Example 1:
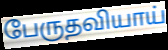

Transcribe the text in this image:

பேருதவியாய்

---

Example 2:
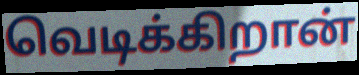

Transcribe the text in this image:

வெடிக்கிறான்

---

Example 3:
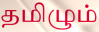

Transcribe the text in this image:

தமிழும்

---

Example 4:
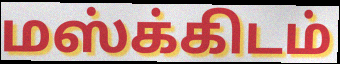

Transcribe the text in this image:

மஸ்க்கிடம்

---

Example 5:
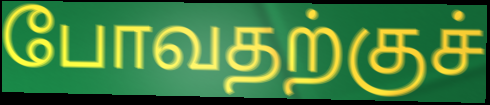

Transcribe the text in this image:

போவதற்குச்